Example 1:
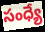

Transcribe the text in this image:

సంధ్యే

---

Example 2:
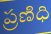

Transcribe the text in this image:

ప్రణిధి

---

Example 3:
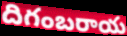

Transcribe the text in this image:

దిగంబరాయ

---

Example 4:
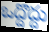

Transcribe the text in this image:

ఒద్దొద్దు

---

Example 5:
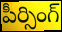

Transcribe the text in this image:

పీర్సింగ్